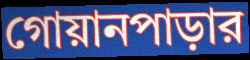
গোয়ানপাড়ার